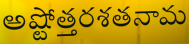
అష్టోత్తరశతనామ